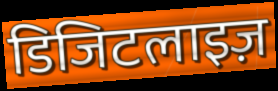
डिजिटलाइज़